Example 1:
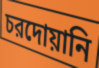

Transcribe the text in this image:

চরদোয়ানি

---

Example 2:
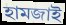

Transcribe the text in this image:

হামজাই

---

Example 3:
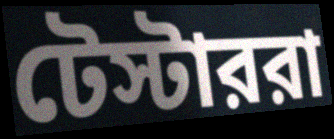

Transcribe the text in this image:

টেস্টাররা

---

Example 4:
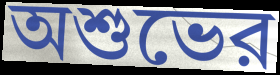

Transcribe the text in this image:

অশুভের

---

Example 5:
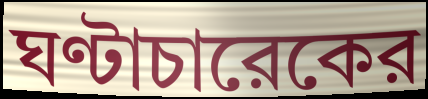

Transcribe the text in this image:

ঘণ্টাচারেকের